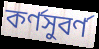
কর্ণসুবর্ণ